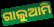
ଗାଲୁଆମି